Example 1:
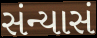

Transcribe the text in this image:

સંન્યાસં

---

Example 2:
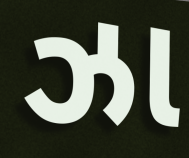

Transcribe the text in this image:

ઝા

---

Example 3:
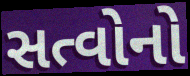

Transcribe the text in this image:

સત્વોનો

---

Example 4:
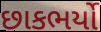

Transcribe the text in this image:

છાકભર્યો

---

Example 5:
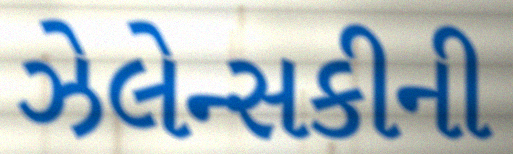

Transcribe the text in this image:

ઝેલેન્સકીની